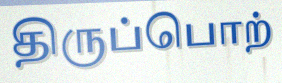
திருப்பொற்